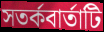
সতর্কবার্তাটি